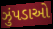
ઝુંપડાઓ